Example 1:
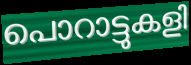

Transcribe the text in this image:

പൊറാട്ടുകളി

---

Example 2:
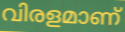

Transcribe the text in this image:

വിരളമാണ്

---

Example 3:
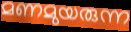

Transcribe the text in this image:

മണമുയരുന്ന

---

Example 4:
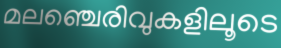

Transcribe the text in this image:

മലഞ്ചെരിവുകളിലൂടെ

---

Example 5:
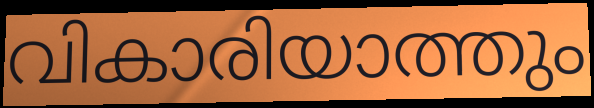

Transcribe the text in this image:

വികാരിയാത്തും